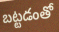
బట్టడంతో